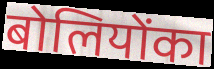
बोलियोंका